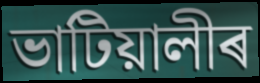
ভাটিয়ালীৰ